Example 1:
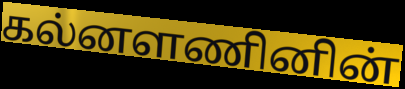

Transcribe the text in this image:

கல்னளணினின்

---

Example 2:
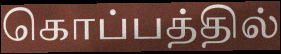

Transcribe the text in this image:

கொப்பத்தில்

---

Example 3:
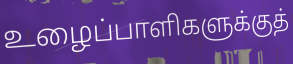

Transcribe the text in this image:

உழைப்பாளிகளுக்குத்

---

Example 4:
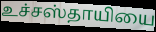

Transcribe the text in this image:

உச்சஸ்தாயியை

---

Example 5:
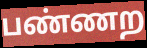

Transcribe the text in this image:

பண்ணற